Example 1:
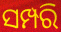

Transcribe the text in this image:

ସମ୍ପରି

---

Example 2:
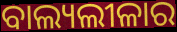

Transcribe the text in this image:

ବାଲ୍ୟଲୀଳାର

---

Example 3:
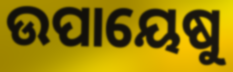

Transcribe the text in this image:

ଉପାୟେଷୁ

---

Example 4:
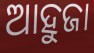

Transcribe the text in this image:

ଆହୁଜା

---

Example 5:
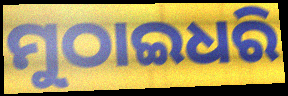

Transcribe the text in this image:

ମୁଠାଇଧରି